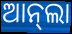
ଆନ୍‌ଲା